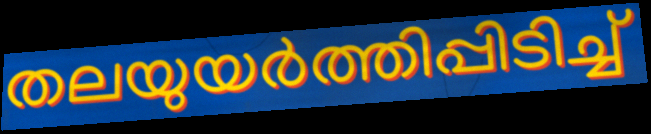
തലയുയർത്തിപ്പിടിച്ച്